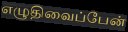
எழுதிவைப்பேன்